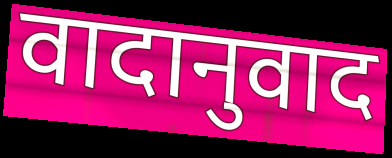
वादानुवाद